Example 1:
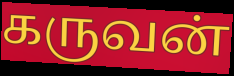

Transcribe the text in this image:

கருவன்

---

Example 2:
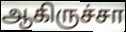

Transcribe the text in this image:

ஆகிருச்சா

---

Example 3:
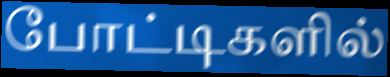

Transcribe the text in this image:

போட்டிகளில்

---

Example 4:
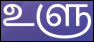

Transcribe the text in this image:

உளு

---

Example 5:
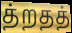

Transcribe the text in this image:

த்றதத்